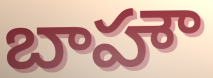
బాహౌ